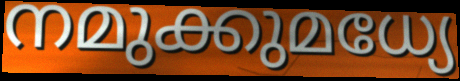
നമുക്കുമധ്യേ